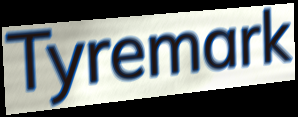
Tyremark